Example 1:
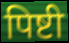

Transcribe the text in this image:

पिष्टी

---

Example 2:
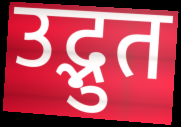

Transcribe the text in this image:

उद्भुत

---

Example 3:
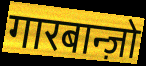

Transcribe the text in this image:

गारबान्ज़ो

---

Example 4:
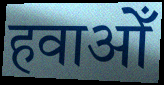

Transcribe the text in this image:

हवाओँ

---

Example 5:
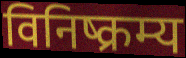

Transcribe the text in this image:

विनिष्क्रम्य